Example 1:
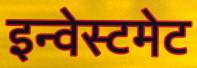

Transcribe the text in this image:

इन्वेस्टमेट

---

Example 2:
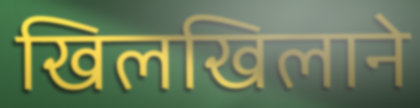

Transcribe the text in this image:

खिलखिलाने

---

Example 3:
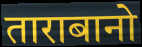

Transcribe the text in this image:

ताराबानो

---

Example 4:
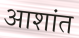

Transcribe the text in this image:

आशांत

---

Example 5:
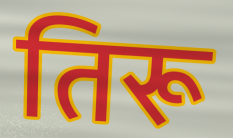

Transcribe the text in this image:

तिरू